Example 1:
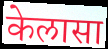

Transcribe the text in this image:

केलासा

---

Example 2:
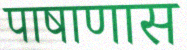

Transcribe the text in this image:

पाषाणास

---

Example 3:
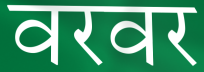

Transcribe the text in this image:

वरवर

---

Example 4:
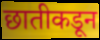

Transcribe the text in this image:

छातीकडून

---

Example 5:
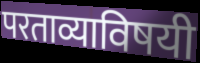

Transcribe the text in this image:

परताव्याविषयी